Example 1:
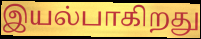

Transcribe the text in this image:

இயல்பாகிறது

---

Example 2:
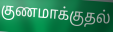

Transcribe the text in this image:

குணமாக்குதல்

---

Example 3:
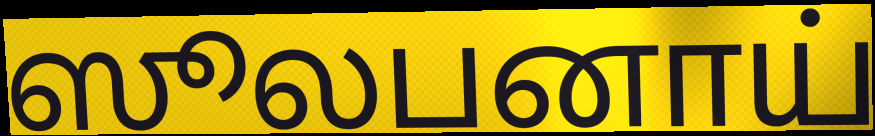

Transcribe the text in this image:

ஸூலபனாய்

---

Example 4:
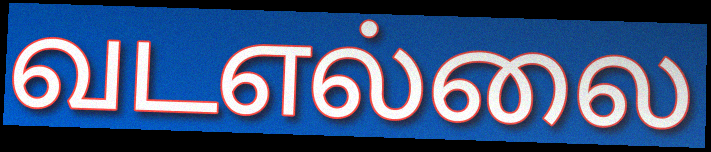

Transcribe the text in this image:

வடஎல்லை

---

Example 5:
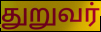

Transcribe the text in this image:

துறுவர்